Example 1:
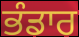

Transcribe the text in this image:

ਭੰਡਾਰ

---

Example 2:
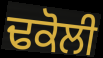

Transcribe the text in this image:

ਢਕੋਲੀ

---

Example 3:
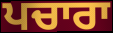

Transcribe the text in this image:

ਪਚਾਰਾ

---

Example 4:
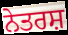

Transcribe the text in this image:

ਨੇਤਰਸ਼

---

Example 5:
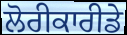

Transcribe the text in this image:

ਲੋਰੀਕਾਰੀਡੇ